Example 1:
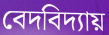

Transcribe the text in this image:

বেদবিদ্যায়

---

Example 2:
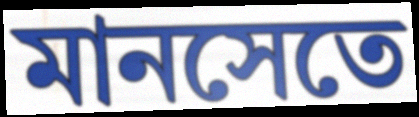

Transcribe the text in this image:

মানসেতে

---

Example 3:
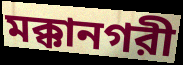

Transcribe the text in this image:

মক্কানগরী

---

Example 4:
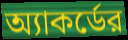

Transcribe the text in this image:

অ্যাকর্ডের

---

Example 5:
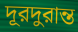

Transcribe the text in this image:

দূরদুরান্ত